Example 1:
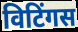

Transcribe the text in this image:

विटिंगस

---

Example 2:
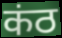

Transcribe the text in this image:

कंठ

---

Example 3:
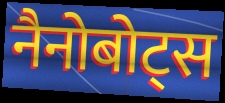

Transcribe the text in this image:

नैनोबोट्स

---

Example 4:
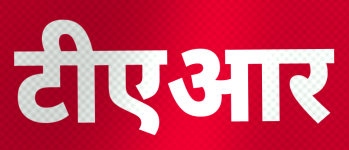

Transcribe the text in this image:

टीएआर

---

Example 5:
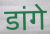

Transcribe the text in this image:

डांगे